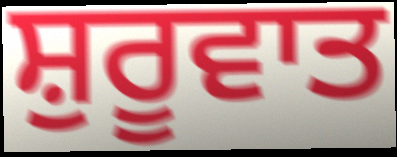
ਸ਼ੁਰੂਵਾਤ